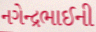
નગેન્દ્રભાઈની